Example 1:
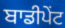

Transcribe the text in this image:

ਬਾਡੀਪੇਂਟ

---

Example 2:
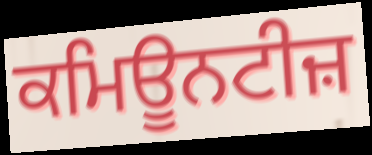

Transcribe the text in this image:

ਕਮਿਊਨਟੀਜ਼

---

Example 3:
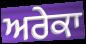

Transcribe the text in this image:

ਅਰੇਕਾ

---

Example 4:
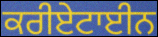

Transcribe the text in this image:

ਕਰੀਏਟਾਈਨ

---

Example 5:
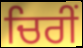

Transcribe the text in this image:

ਚਿਰੀਂ